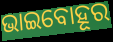
ଭାଇବୋହୂର